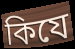
কিযে